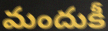
మందుకీ